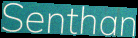
Senthan